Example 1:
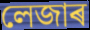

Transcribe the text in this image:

লেজাৰ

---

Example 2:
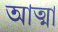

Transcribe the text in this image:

আত্মা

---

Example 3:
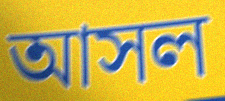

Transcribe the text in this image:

আসল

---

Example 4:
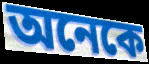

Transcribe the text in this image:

অনেকে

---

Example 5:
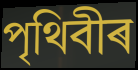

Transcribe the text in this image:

পৃথিবীৰ